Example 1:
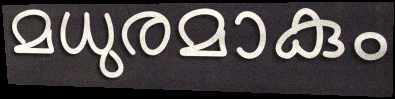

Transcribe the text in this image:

മധുരമാകും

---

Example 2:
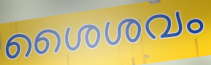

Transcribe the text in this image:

ശൈശവം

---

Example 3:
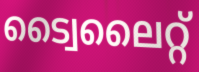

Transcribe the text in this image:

ട്വൈലൈറ്റ്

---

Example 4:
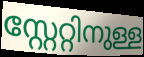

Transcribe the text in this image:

സ്റ്റേറ്റിനുള്ള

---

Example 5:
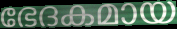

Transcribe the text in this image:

ഭേദകമായ